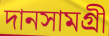
দানসামগ্রী